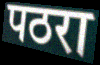
पठरा